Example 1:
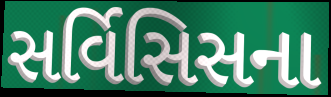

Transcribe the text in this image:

સર્વિસિસના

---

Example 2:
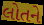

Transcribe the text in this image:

લોતને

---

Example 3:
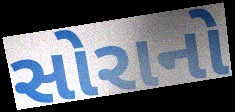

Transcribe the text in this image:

સોરાનો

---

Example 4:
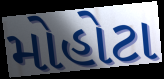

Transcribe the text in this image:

મોહોટા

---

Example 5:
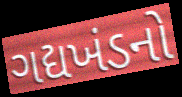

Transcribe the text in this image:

ગદ્યખંડનો